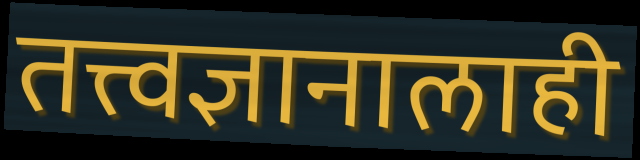
तत्त्वज्ञानालाही